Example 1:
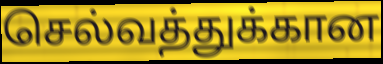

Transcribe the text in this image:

செல்வத்துக்கான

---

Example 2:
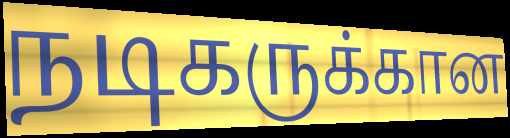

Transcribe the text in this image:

நடிகருக்கான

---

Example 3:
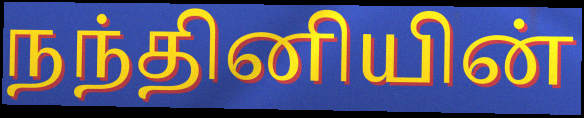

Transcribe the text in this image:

நந்தினியின்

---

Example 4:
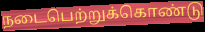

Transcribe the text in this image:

நடைபெற்றுக்கொண்டு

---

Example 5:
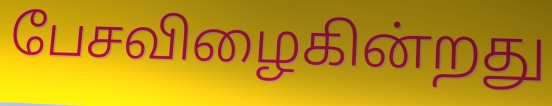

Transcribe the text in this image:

பேசவிழைகின்றது